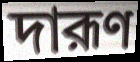
দারূণ